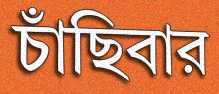
চাঁছিবার